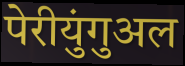
पेरीयुंगुअल